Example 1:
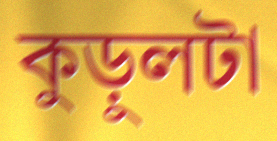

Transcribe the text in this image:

কুড়ুলটা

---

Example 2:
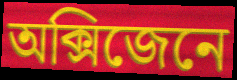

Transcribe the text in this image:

অক্সিজেনে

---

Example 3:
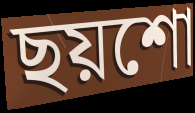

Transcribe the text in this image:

ছয়শো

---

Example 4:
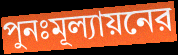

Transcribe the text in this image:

পুনঃমূল্যায়নের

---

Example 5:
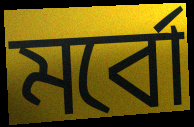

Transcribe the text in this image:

মর্বো